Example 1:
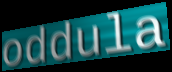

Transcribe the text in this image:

oddula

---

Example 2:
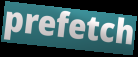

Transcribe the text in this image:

prefetch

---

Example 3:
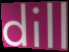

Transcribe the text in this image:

dill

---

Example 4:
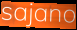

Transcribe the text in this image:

sajano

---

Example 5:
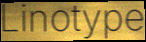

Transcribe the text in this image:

Linotype